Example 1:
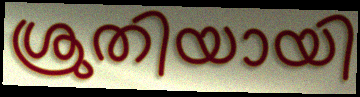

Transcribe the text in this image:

ശ്രുതിയായി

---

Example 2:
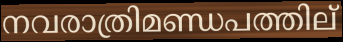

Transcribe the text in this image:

നവരാത്രിമണ്ഡപത്തില്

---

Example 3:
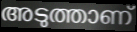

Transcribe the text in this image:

അടുത്താണ്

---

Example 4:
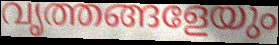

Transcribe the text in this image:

വൃത്തങ്ങളേയും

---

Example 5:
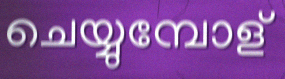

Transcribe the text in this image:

ചെയ്യുമ്പോള്